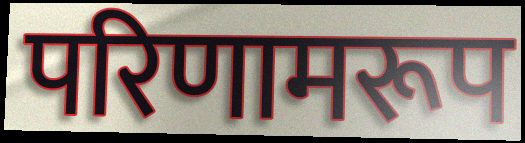
परिणामरूप